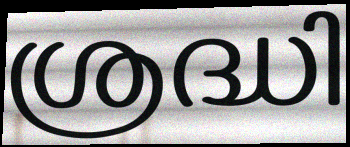
ശ്രദ്ധി